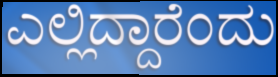
ಎಲ್ಲಿದ್ದಾರೆಂದು